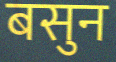
बसुन